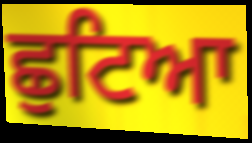
ਛੁਟਿਆ